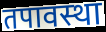
तपावस्था